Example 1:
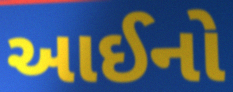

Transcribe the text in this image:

આઈનો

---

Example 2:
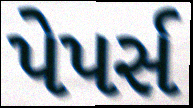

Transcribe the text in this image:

પેપર્સ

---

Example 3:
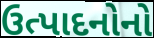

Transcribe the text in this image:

ઉત્પાદનોનો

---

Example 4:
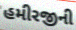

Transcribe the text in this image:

હમીરજીની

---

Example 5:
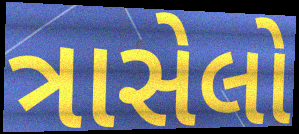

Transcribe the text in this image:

ત્રાસેલો